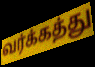
வர்க்கத்து